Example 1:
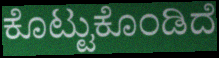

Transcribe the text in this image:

ಕೊಟ್ಟುಕೊಂಡಿದೆ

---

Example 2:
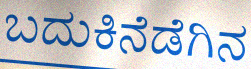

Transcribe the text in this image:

ಬದುಕಿನೆಡೆಗಿನ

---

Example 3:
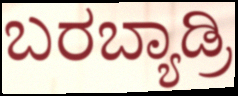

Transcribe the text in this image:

ಬರಬ್ಯಾಡ್ರಿ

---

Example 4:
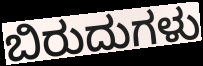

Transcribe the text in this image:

ಬಿರುದುಗಳು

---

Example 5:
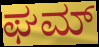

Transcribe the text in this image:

ಘಮ್